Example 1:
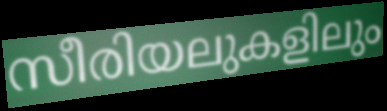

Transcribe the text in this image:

സീരിയലുകളിലും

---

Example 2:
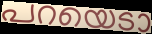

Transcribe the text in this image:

പറയെടാ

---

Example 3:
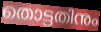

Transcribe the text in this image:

തൊട്ടതിനും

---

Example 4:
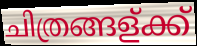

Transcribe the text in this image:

ചിത്രങ്ങള്ക്ക്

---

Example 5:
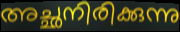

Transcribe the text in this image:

അച്ഛനിരിക്കുന്നു